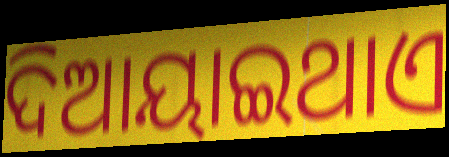
ଦିଆୟାଇଥାଏ